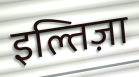
इल्तिज़ा